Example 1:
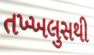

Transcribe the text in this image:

તખ્ખલુસથી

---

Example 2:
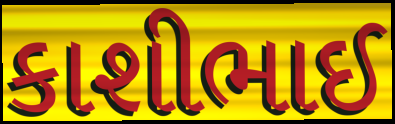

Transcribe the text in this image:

કાશીભાઈ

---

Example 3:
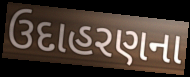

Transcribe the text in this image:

ઉદાહરણના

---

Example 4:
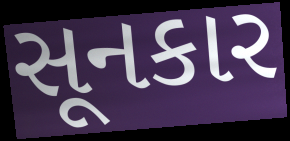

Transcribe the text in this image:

સૂનકાર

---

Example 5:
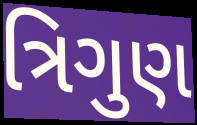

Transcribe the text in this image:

ત્રિગુણ